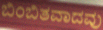
ಬಿಂಬಿತವಾದವು